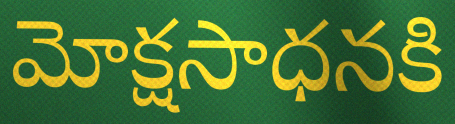
మోక్షసాధనకి